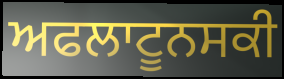
ਅਫਲਾਟੂਨਸਕੀ